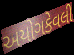
અયોગકેવલી